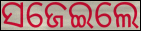
ସଜେଇଲେ